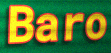
Baro